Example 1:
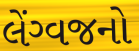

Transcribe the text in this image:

લેંગ્વજનો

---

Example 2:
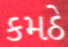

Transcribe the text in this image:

કમઠે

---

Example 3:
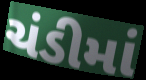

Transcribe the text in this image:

ચંડીમાં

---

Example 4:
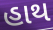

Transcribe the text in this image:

હાથ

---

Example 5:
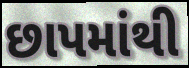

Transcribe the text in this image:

છાપમાંથી